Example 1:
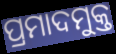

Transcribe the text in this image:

ପ୍ରମାଦମୁକ୍ତ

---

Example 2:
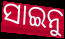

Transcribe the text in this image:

ସାଇନୁ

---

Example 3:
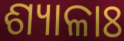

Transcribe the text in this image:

ଶ୍ୟାଳାଃ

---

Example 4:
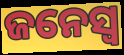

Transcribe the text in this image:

ଜନେସ୍ୱ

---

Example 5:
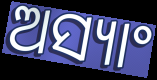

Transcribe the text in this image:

ଅସ୍ୟାଂ